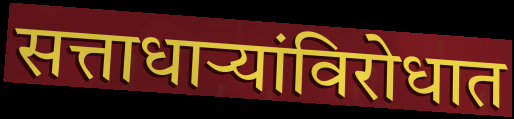
सत्ताधाऱ्यांविरोधात